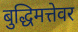
बुद्धिमत्तेवर